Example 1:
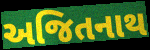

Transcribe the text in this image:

અજિતનાથ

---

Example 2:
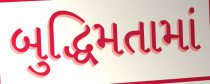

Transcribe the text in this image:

બુદ્ધિમતામાં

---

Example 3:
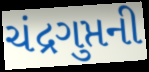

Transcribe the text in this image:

ચંદ્રગુપ્તની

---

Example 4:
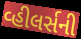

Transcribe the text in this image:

વ્હીલર્સની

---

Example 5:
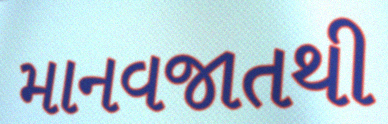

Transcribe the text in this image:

માનવજાતથી